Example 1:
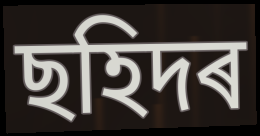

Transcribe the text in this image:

ছহিদৰ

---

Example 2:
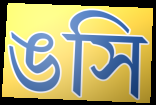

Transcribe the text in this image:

ঙসি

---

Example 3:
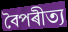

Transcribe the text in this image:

বৈপৰীত্য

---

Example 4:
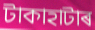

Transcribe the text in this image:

টাকাহাটাৰ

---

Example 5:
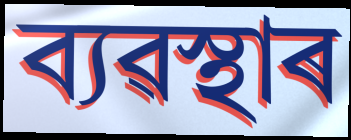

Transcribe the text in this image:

ব্যৱস্থাৰ